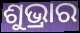
ଶୁଭ୍ରାର